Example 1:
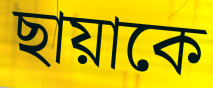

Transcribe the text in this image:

ছায়াকে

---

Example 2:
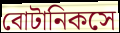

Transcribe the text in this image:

বোটানিকসে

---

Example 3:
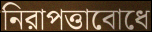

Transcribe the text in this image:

নিরাপত্তাবোধে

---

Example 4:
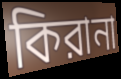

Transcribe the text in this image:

কিরানা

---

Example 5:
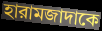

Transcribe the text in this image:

হারামজাদাকে